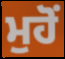
ਮੁਹੋਂ